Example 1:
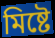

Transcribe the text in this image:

মিষ্টে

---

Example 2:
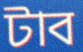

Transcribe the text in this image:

টাব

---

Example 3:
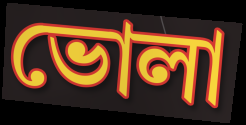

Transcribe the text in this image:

ভোলা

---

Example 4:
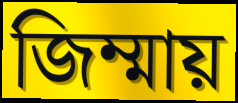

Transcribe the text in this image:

জিম্মায়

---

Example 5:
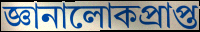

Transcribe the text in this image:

জ্ঞানালোকপ্রাপ্ত